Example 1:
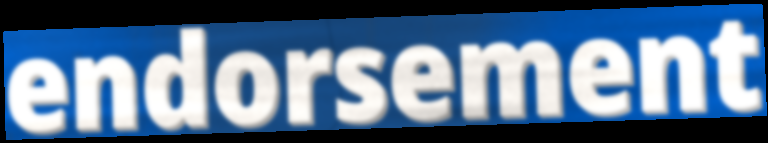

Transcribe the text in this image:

endorsement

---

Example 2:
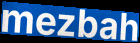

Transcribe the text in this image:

mezbah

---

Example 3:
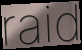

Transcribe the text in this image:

raid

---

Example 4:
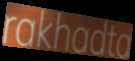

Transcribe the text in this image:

rakhadta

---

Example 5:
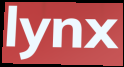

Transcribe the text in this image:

lynx